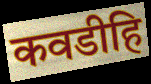
कवडीहि